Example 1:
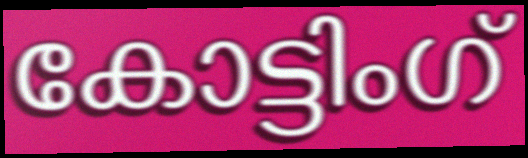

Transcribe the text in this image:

കോട്ടിംഗ്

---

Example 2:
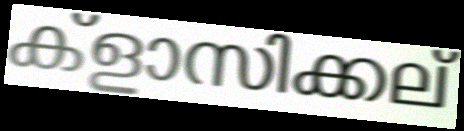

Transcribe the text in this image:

ക്ളാസിക്കല്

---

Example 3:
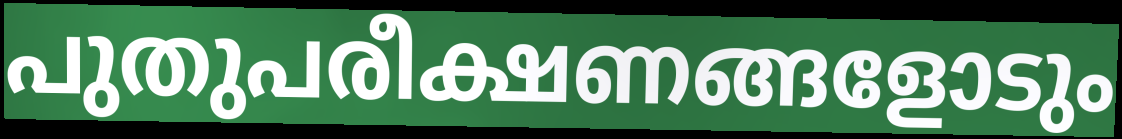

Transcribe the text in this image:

പുതുപരീക്ഷണങ്ങളോടും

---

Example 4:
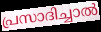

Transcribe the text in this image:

പ്രസാദിച്ചാൽ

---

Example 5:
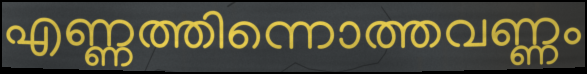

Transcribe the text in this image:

എണ്ണത്തിന്നൊത്തവണ്ണം